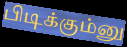
பிடிக்கும்னு